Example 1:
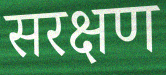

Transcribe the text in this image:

सरक्षण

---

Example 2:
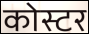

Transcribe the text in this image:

कोस्टर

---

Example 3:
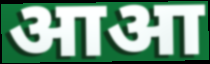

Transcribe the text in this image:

आआ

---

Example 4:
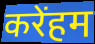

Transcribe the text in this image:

करेंहम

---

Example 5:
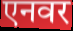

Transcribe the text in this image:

एनवर